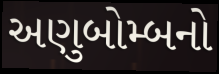
અણુબોમ્બનો